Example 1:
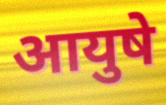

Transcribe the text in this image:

आयुषे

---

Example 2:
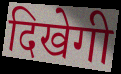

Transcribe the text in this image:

दिखेगी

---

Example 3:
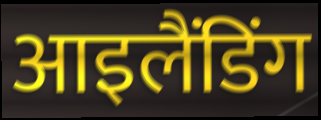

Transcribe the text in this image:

आइलैंडिंग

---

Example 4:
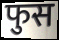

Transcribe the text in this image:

फुस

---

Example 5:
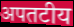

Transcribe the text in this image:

अपतटीय